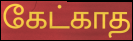
கேட்காத